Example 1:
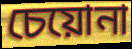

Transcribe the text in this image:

চেয়োনা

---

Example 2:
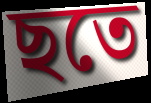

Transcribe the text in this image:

ছতে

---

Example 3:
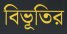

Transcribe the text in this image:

বিভূতির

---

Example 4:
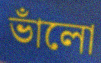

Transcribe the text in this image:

ভাঁলো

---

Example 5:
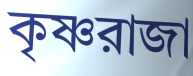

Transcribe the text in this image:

কৃষ্ণরাজা